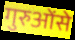
गुरुओंसे